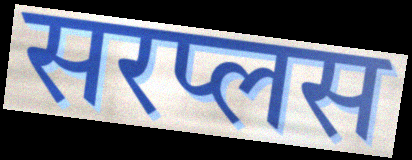
सरप्लस